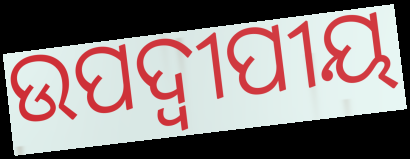
ଉପଦ୍ଵୀପୀୟ